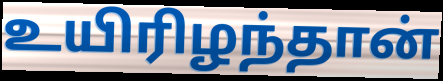
உயிரிழந்தான்